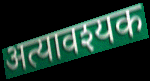
अत्यावश्यक